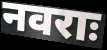
नवराः